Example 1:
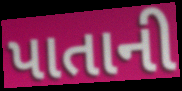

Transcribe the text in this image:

પાતાની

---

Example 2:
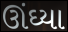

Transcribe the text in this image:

ઊંઘ્યા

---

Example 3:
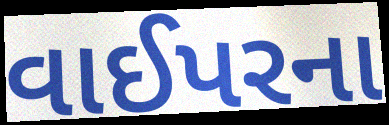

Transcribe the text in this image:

વાઈપરના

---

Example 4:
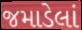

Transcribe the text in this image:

જમાડેલાં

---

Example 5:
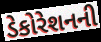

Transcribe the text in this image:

ડેકોરેશનની